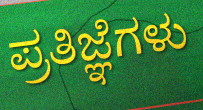
ಪ್ರತಿಜ್ಞೆಗಳು